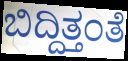
ಬಿದ್ದಿತ್ತಂತೆ